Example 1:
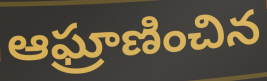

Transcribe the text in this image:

ఆఘ్రాణించిన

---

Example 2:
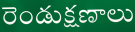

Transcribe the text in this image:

రెండుక్షణాలు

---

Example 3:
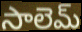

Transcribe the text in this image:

సాలెమ్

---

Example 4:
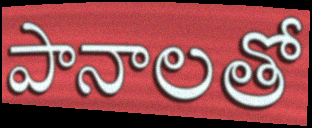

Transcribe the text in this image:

పానాలతో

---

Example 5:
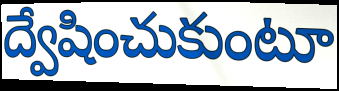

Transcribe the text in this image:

ద్వేషించుకుంటూ